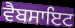
ਵੈਬਸਾਇਟ